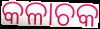
କଳାଚକ